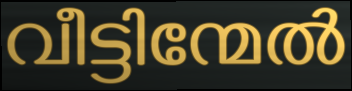
വീട്ടിന്മേൽ